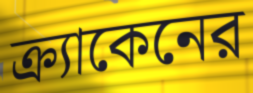
ক্র্যাকেনের